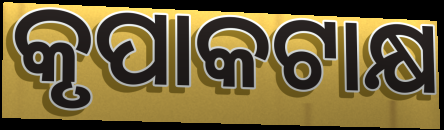
କୃପାକଟାକ୍ଷ